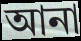
আনা